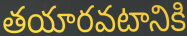
తయారవటానికి